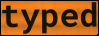
typed